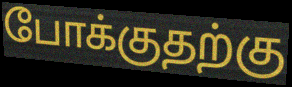
போக்குதற்கு